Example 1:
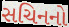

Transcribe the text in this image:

સચિનનો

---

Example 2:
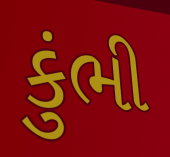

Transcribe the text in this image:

કુંભી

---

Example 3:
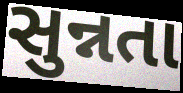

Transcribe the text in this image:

સુન્નતા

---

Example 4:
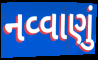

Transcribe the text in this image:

નવ્વાણું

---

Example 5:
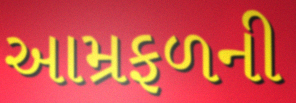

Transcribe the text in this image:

આમ્રફળની